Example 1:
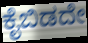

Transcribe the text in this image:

ಕೈಬಿಡದೇ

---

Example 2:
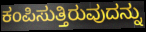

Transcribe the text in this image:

ಕಂಪಿಸುತ್ತಿರುವುದನ್ನು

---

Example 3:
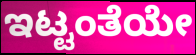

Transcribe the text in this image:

ಇಟ್ಟಂತೆಯೇ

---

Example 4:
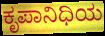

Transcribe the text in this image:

ಕೃಪಾನಿಧಿಯ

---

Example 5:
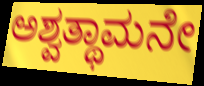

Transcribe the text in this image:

ಅಶ್ವತ್ಥಾಮನೇ